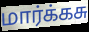
மார்க்கசு